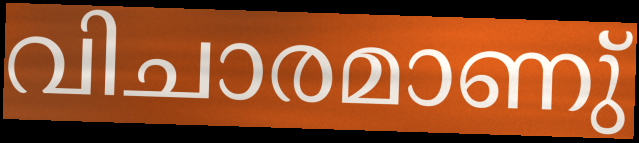
വിചാരമാണു്